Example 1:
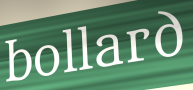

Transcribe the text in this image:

bollard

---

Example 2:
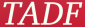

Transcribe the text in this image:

TADF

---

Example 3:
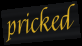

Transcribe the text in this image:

pricked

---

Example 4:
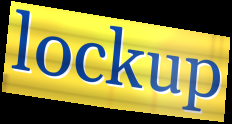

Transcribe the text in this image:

lockup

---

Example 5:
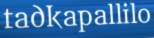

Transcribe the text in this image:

tadkapallilo